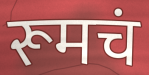
रूमचं